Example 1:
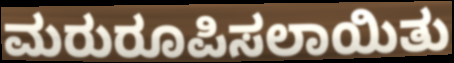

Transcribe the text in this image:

ಮರುರೂಪಿಸಲಾಯಿತು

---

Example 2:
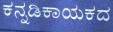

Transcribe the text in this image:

ಕನ್ನಡಿಕಾಯಕದ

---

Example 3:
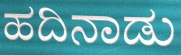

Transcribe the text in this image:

ಹದಿನಾಡು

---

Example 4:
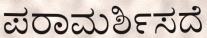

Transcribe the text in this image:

ಪರಾಮರ್ಶಿಸದೆ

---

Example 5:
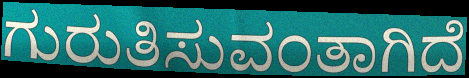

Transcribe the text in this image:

ಗುರುತಿಸುವಂತಾಗಿದೆ